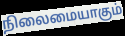
நிலைமையாகும்